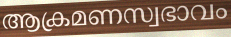
ആക്രമണസ്വഭാവം